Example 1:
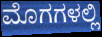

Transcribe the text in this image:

ಮೊಗಗಳಲ್ಲಿ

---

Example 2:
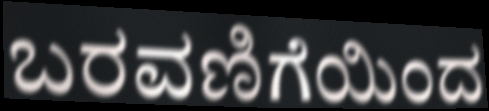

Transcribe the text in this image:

ಬರವಣಿಗೆಯಿಂದ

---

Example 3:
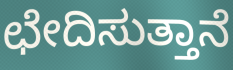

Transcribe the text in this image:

ಛೇದಿಸುತ್ತಾನೆ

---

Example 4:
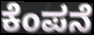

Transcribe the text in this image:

ಕೆಂಪನೆ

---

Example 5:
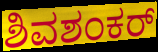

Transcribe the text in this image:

ಶಿವಶಂಕರ್